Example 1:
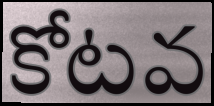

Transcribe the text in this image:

కోటవ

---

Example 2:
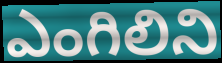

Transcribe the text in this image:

ఎంగిలిని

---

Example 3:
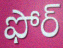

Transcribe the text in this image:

ఫోర్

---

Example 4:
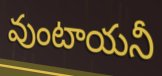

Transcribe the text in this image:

వుంటాయనీ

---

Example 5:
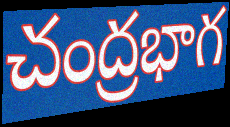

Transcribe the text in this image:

చంద్రభాగ